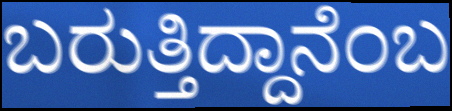
ಬರುತ್ತಿದ್ದಾನೆಂಬ